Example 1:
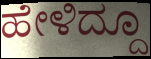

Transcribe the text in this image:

ಹೇಳಿದ್ದೂ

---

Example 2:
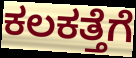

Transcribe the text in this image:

ಕಲಕತ್ತೆಗೆ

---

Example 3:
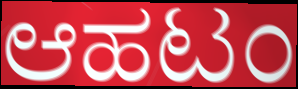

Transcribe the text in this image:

ಆಹಟಂ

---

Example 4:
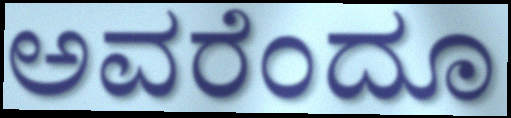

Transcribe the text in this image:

ಅವರೆಂದೂ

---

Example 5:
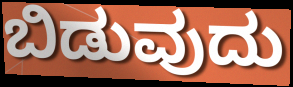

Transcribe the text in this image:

ಬಿಡುವುದು